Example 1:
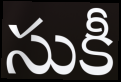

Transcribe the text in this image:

సుకీ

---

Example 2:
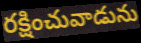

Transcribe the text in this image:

రక్షించువాడును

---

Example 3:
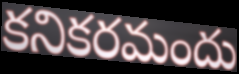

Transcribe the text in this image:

కనికరమందు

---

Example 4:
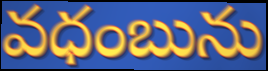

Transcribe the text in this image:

వధంబును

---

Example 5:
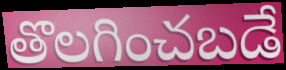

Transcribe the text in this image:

తొలగించబడే